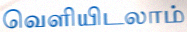
வெளியிடலாம்